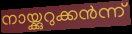
നായ്ക്കുറുക്കൻന്ന്